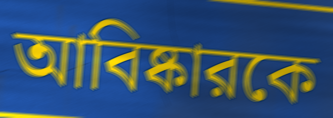
আবিষ্কারকে